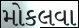
મોકલવા